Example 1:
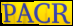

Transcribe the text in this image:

PACR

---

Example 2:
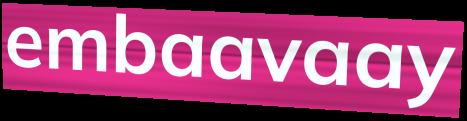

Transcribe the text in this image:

embaavaay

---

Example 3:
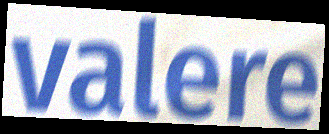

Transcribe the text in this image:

valere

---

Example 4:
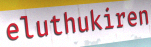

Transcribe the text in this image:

eluthukiren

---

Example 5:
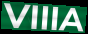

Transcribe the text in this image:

VIIIA